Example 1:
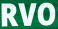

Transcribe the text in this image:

RVO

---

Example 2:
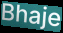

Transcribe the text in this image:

Bhaje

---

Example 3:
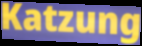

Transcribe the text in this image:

Katzung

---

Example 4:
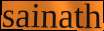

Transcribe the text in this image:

sainath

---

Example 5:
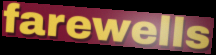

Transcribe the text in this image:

farewells